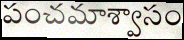
పంచమాశ్వాసం